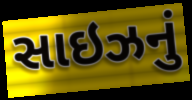
સાઇઝનું